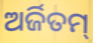
ଅର୍ଜିତମ୍